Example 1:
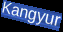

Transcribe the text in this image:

Kangyur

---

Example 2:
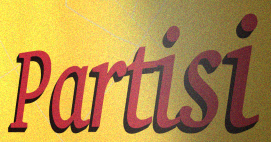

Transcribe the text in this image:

Partisi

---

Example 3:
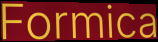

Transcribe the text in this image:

Formica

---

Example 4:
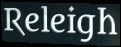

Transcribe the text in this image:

Releigh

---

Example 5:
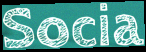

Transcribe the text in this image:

Socia